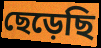
ছেড়েছি